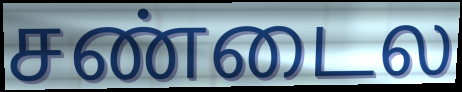
சண்டைல